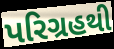
પરિગ્રહથી